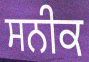
ਸਨੀਕ